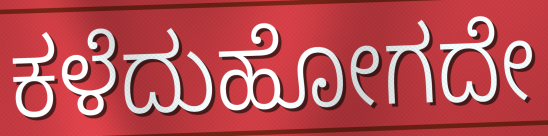
ಕಳೆದುಹೋಗದೇ